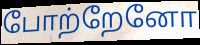
போற்றேனோ